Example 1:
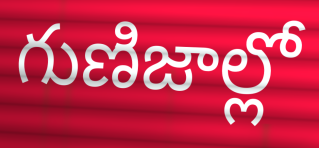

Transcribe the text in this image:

గుణిజాల్లో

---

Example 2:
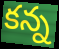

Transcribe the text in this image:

కన్న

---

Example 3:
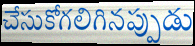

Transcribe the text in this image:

చేసుకోగలిగినప్పుడు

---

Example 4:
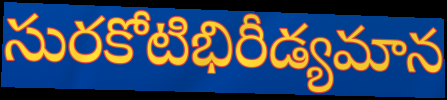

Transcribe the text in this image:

సురకోటిభిరీడ్యమాన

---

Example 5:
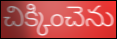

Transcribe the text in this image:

చిక్కించెను